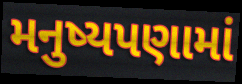
મનુષ્યપણામાં